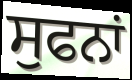
ਸੁਫਨਾਂ